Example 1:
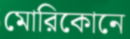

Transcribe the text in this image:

মোরিকোনে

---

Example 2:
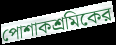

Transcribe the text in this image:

পোশাকশ্রমিকের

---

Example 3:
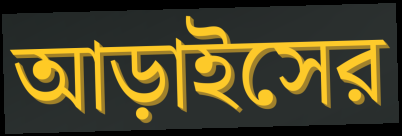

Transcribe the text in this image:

আড়াইসের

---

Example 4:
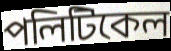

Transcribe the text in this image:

পলিটিকেল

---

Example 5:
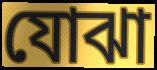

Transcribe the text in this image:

যোঝা